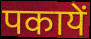
पकायें